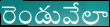
రెండువేలా